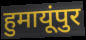
हुमायूंपुर